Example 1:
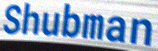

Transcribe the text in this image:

Shubman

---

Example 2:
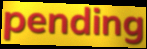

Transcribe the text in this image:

pending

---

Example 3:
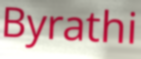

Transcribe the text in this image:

Byrathi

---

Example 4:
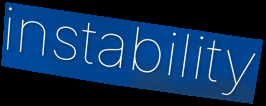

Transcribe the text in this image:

instability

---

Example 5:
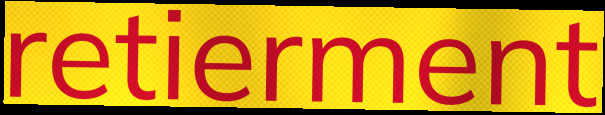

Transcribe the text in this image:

retierment